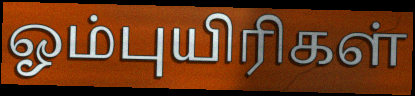
ஓம்புயிரிகள்